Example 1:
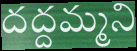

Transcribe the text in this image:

దద్దమ్మని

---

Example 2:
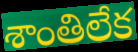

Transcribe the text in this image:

శాంతిలేక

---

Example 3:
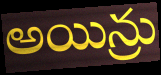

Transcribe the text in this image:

అయిన్రు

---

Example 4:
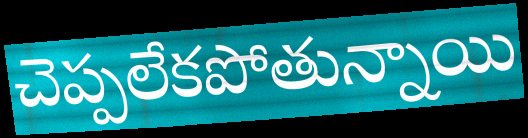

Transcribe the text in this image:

చెప్పలేకపోతున్నాయి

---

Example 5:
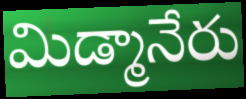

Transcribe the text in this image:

మిడ్మానేరు